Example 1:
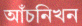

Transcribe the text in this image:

আঁচনিখন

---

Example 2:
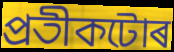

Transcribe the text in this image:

প্ৰতীকটোৰ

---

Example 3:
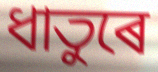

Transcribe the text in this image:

ধাতুৰে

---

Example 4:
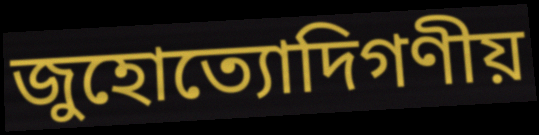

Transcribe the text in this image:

জুহোত্যোদিগণীয়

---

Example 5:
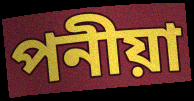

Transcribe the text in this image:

পনীয়া